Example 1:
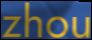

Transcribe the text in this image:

zhou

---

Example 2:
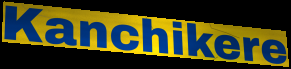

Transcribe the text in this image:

Kanchikere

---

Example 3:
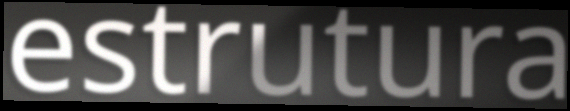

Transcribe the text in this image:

estrutura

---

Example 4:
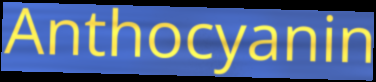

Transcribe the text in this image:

Anthocyanin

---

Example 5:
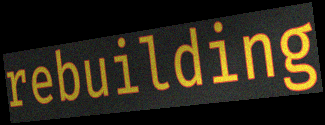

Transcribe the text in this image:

rebuilding